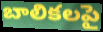
బాలికలపై